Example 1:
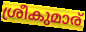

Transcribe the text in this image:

ശ്രീകുമാര്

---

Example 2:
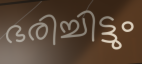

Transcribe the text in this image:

ഭരിച്ചിട്ടും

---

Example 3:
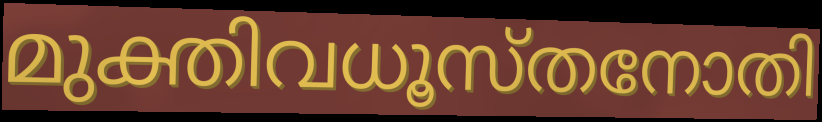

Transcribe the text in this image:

മുക്തിവധൂസ്തനോതി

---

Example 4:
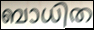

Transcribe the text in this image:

ബാധിത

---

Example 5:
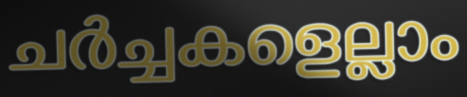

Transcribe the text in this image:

ചർച്ചകളെല്ലാം